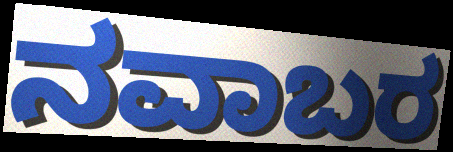
ನವಾಬರ